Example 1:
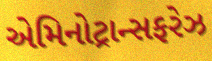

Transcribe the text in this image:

એમિનોટ્રાન્સફરેઝ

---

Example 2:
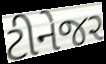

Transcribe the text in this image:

ટીનેજર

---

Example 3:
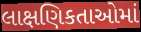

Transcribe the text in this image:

લાક્ષણિકતાઓમાં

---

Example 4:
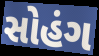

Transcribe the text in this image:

સોહંગ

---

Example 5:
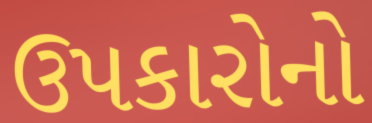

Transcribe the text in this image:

ઉપકારોનો